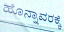
ಹೊನ್ನಾವರಕ್ಕೆ